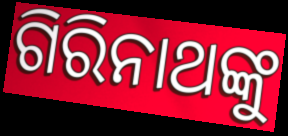
ଗିରିନାଥଙ୍କୁ